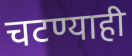
चटण्याही